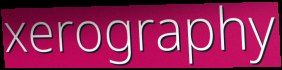
xerography